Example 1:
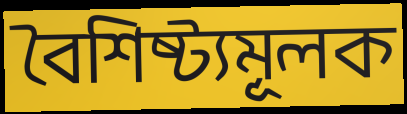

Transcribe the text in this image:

বৈশিষ্ট্যমূলক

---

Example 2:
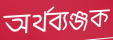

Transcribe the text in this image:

অৰ্থব্যঞ্জক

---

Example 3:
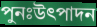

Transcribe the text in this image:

পুনঃউৎপাদন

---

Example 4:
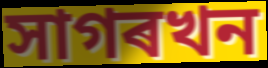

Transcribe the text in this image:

সাগৰখন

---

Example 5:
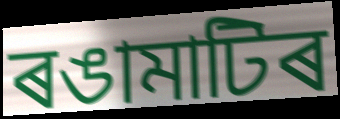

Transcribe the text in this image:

ৰঙামাটিৰ